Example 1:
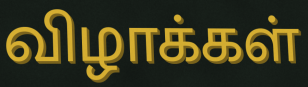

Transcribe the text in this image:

விழாக்கள்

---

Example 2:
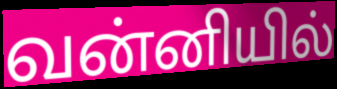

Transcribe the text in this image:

வன்னியில்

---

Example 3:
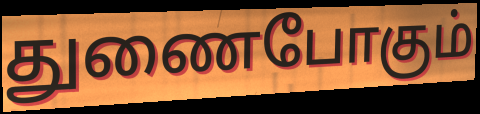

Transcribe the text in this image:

துணைபோகும்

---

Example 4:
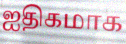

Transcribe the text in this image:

ஐதிகமாக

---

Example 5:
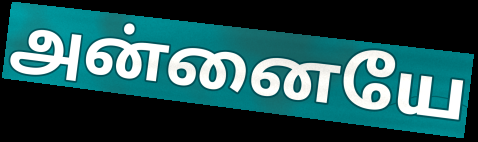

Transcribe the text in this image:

அன்னையே